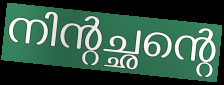
നിന്റച്ഛന്റെ